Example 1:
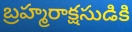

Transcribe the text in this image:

బ్రహ్మరాక్షసుడికి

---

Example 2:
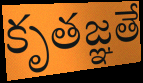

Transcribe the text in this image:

కృతజ్ఞతే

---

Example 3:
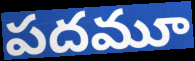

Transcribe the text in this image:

పదమూ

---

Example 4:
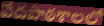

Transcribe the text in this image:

వేదపాఠశాలలో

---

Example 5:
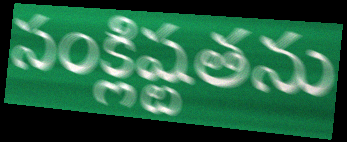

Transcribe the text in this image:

సంక్లిష్టతను